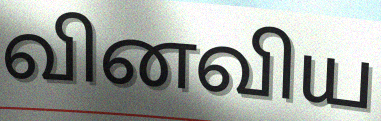
வினவிய